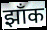
झाँक